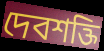
দেবশক্তি